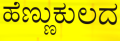
ಹೆಣ್ಣುಕುಲದ